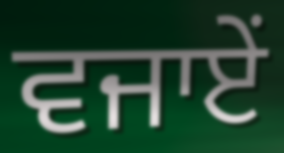
ਵਜਾਏਂ